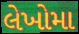
લેખોમા